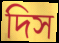
দিস